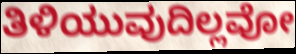
ತಿಳಿಯುವುದಿಲ್ಲವೋ